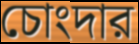
চোংদার